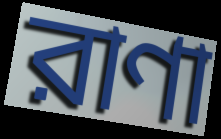
রাণা